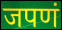
जपणं